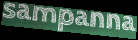
sampanna